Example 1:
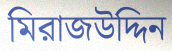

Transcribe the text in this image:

মিরাজউদ্দিন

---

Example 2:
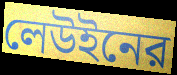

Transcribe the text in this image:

লেউইনের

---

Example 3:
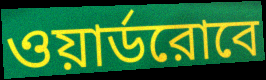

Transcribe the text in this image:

ওয়ার্ডরোবে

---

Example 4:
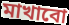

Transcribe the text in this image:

মাখাবো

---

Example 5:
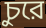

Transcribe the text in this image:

চুরে